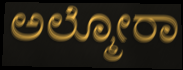
ಅಲ್ಮೋರಾ